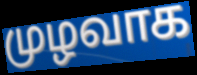
முழவாக